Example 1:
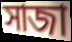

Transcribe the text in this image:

সাজা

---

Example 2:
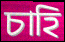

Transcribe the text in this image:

চাহি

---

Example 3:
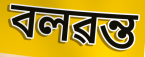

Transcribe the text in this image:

বলৱন্ত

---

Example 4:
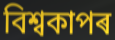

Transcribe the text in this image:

বিশ্বকাপৰ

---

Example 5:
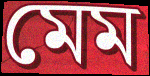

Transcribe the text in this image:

মেম